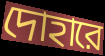
দোহারে